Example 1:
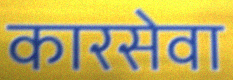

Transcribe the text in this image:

कारसेवा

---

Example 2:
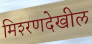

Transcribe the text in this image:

मिश्रणदेखील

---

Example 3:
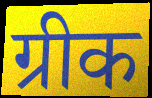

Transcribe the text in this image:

ग्रीक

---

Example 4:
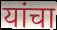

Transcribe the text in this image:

यांचा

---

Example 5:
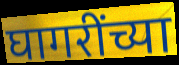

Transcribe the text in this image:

घागरींच्या